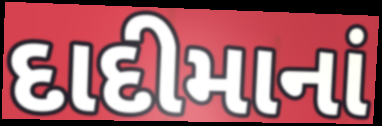
દાદીમાનાં